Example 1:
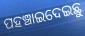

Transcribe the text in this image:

ପହଞ୍ଚାଇଦେଇଛୁ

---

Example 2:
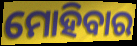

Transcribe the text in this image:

ମୋହିବାର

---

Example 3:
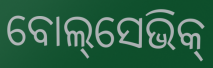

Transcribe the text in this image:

ବୋଲ୍‌ସେଭିକ୍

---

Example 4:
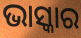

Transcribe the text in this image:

ଭାସ୍କାର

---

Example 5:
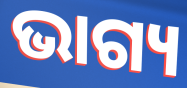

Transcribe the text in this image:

ଭାଗ୍ୟ